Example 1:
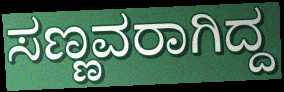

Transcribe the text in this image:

ಸಣ್ಣವರಾಗಿದ್ದ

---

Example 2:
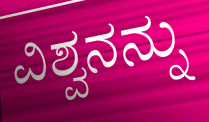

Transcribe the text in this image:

ವಿಶ್ವನನ್ನು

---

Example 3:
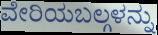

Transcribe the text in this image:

ವೇರಿಯಬಲ್ಗಳನ್ನು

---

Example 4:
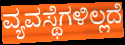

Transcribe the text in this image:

ವ್ಯವಸ್ಥೆಗಳಿಲ್ಲದೆ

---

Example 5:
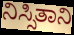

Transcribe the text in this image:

ನಿಸ್ಸಿತಾನಿ